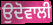
ਉਦੋਵਾਲੀ